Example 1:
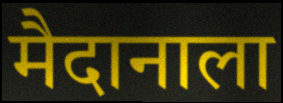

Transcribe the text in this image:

मैदानाला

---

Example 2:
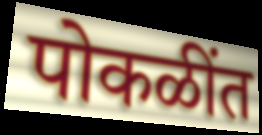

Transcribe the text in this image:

पोकळींत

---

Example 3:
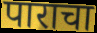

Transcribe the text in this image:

पाराचा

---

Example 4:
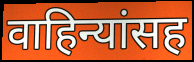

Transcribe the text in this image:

वाहिन्यांसह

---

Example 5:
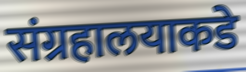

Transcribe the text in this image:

संग्रहालयाकडे